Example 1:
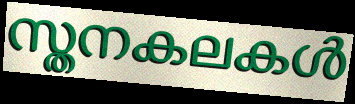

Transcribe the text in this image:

സ്തനകലകൾ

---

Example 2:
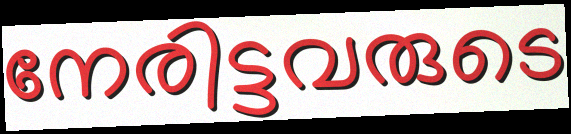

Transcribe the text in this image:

നേരിട്ടവരുടെ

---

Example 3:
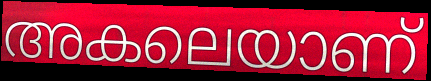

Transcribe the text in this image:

അകലെയാണ്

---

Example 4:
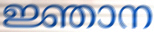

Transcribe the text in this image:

ജ്ഞാന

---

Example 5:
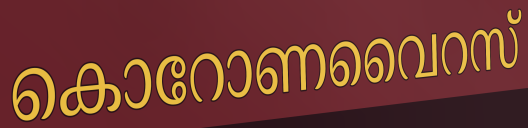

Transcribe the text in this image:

കൊറോണവൈറസ്